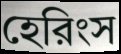
হেরিংস